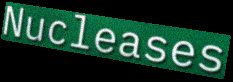
Nucleases